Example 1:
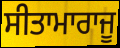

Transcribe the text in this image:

ਸੀਤਾਮਾਰਾਜੂ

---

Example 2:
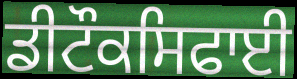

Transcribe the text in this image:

ਡੀਟੌਕਸਿਫਾਈ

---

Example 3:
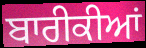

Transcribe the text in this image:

ਬਾਰੀਕੀਆਂ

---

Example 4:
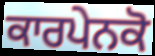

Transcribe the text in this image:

ਕਾਰਪੇਨਕੋ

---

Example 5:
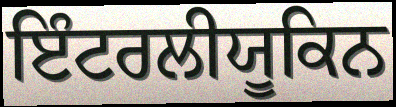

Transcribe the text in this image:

ਇੰਟਰਲੀਯੂਕਿਨ